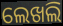
ଲେଖଲି